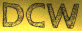
DCW